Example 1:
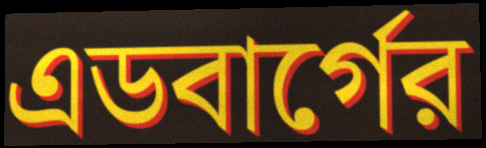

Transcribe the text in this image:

এডবার্গের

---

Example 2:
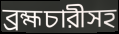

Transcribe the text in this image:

ব্রহ্মচারীসহ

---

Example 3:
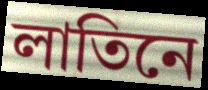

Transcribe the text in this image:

লাতিনে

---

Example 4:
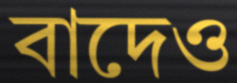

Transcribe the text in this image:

বাদেও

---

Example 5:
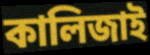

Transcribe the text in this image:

কালিজাই